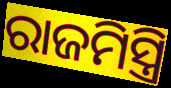
ରାଜମିସ୍ତ୍ରି